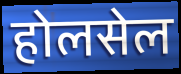
होलसेल